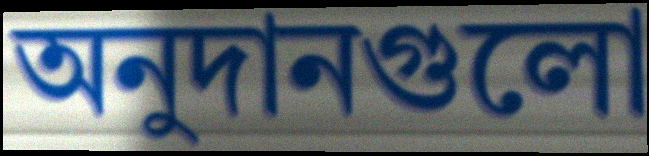
অনুদানগুলো